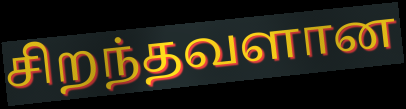
சிறந்தவளான